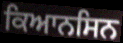
ਕਿਆਨਸਿਨ